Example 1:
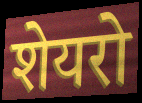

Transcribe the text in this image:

शेयरो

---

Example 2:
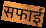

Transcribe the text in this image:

सफाई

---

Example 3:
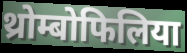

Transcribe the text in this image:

थ्रोम्बोफिलिया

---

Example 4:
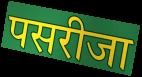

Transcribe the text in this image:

पसरीजा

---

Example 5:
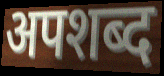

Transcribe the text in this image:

अपशब्द